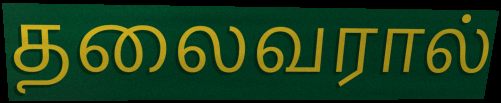
தலைவரால்